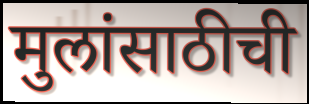
मुलांसाठीची